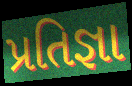
પ્રતિજ્ઞા